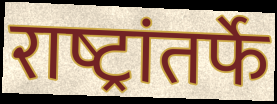
राष्ट्रांतर्फे